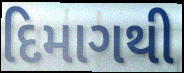
દિમાગથી